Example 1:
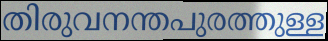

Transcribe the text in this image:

തിരുവനന്തപുരത്തുള്ള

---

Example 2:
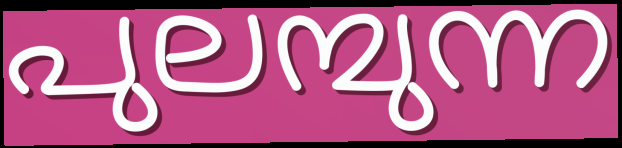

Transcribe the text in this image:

പുലമ്പുന്ന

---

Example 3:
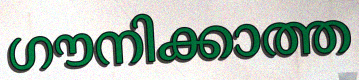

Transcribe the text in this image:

ഗൗനിക്കാത്ത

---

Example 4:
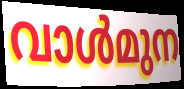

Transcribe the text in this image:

വാൾമുന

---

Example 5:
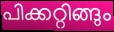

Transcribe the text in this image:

പിക്കറ്റിങ്ങും